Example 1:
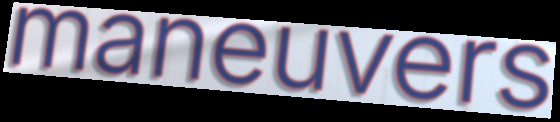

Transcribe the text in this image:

maneuvers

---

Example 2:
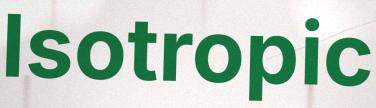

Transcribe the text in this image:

Isotropic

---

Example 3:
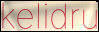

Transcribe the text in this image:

kelidru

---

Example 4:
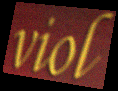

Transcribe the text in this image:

viol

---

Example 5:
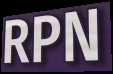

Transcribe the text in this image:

RPN